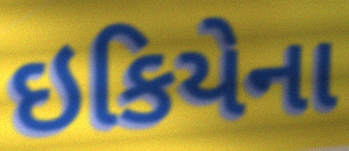
ઇકિયેના